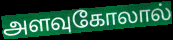
அளவுகோலால்